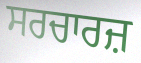
ਸਰਚਾਰਜ਼